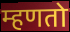
म्हणतो